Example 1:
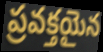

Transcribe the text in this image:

ప్రవక్తయైన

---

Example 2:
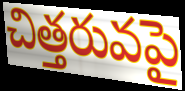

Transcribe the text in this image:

చిత్తరువపై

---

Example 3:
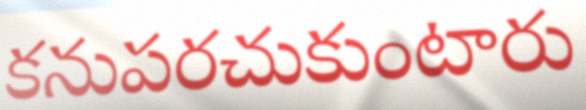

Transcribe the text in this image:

కనుపరచుకుంటారు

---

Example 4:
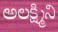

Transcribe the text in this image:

అలక్ష్మిని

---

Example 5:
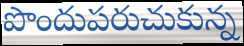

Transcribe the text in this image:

పొందుపరుచుకున్న